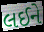
લઈને